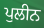
ਪੁਲੀਨ